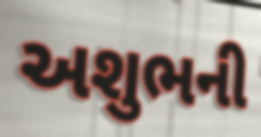
અશુભની